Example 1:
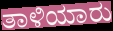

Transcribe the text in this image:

ತಾಳಿಯಾರು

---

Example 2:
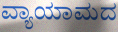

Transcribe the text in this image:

ವ್ಯಾಯಾಮದ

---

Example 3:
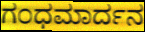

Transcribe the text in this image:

ಗಂಧಮಾರ್ದನ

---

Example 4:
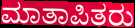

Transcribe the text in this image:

ಮಾತಾಪಿತರು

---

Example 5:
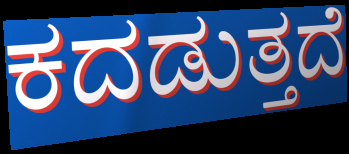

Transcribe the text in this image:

ಕದಡುತ್ತದೆ